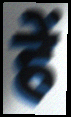
हें